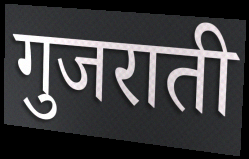
गुजराती